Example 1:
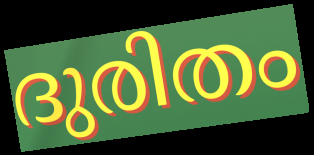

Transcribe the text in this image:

ദുരിതം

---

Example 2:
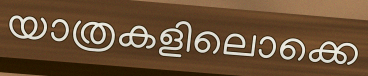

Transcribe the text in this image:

യാത്രകളിലൊക്കെ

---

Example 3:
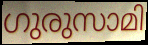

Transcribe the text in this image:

ഗുരുസാമി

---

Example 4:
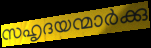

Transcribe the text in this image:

സഹൃദയന്മാർക്കു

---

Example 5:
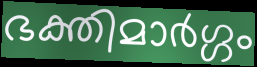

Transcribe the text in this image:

ഭക്തിമാർഗ്ഗം